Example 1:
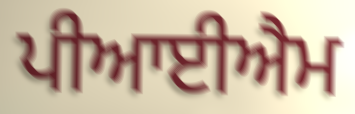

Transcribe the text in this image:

ਪੀਆਈਐਮ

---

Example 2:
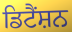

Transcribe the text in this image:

ਡਿਟੈਂਸ਼ਨ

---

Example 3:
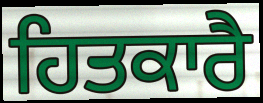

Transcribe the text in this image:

ਹਿਤਕਾਰੈ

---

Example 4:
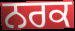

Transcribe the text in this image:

ਨਰਕ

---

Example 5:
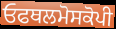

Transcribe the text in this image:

ਓਫਥਲਮੋਸਕੋਪੀ